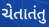
ચેતાતંતુ